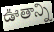
ఊతాన్ని